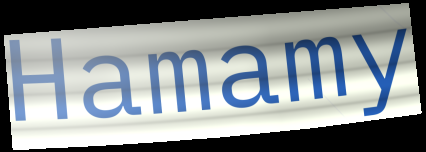
Hamamy